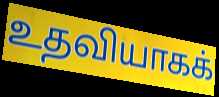
உதவியாகக்